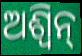
ଅଶ୍ବିନ୍